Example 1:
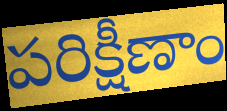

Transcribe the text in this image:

పరిక్షీణాం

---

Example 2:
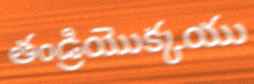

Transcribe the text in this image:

తండ్రియొక్కయు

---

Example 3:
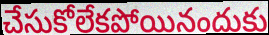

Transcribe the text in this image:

చేసుకోలేకపోయినందుకు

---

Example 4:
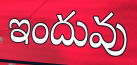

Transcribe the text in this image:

ఇందువు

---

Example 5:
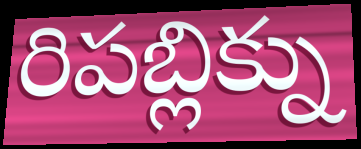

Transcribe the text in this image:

రిపబ్లిక్ను